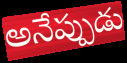
అనేప్పుడు